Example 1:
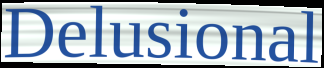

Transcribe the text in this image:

Delusional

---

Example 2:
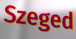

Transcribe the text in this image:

Szeged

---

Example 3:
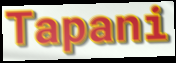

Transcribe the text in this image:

Tapani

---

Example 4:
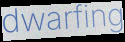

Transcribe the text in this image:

dwarfing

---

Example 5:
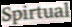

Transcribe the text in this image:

Spirtual